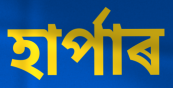
হাৰ্পাৰ